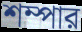
শম্পার